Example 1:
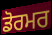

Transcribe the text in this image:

ਡੋਰਮਰ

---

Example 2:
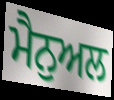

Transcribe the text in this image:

ਮੈਨੁਅਲ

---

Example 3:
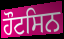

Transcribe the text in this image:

ਹੌਟਸਿਨ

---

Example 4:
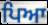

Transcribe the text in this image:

ਪਿਆ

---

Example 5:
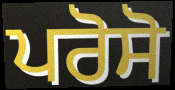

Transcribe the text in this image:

ਪਰੋਸੋ